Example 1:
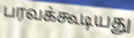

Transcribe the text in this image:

பரவக்கூடியது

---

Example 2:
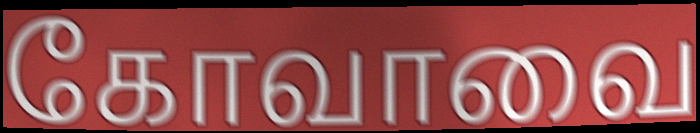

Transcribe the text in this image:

கோவாவை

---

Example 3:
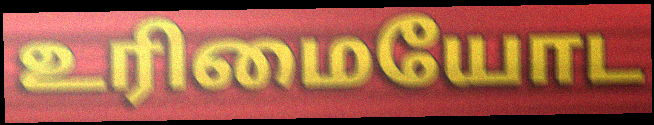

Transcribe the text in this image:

உரிமையோட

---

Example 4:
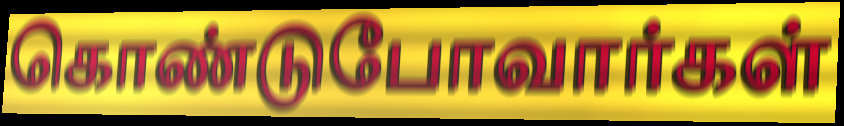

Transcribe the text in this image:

கொண்டுபோவார்கள்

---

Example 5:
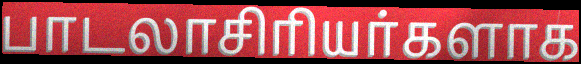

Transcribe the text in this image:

பாடலாசிரியர்களாக